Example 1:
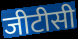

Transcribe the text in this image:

जीटीसी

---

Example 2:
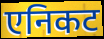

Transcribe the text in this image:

एनिकट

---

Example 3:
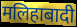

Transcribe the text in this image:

मलिहाबादी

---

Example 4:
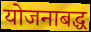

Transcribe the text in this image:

योजनाबद्ध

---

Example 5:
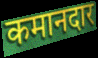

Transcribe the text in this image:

कमानदार